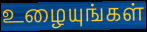
உழையுங்கள்